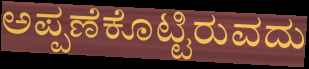
ಅಪ್ಪಣೆಕೊಟ್ಟಿರುವದು